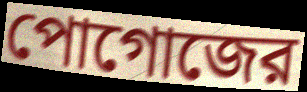
পোগোজের